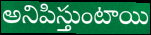
అనిపిస్తుంటాయి